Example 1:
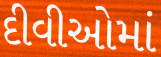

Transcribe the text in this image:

દીવીઓમાં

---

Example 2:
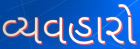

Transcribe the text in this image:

વ્યવહારો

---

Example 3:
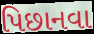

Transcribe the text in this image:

પિછાનવા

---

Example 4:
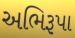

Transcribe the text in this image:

અભિરૂપા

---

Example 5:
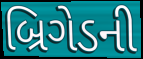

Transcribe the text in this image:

બ્રિગેડની